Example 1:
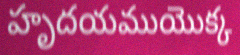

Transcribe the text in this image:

హృదయముయొక్క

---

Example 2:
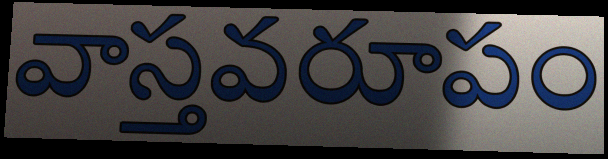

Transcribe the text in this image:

వాస్తవరూపం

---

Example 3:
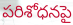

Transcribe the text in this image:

పరిశోధనపై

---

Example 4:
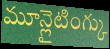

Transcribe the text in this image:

మూన్లైటింగ్కు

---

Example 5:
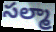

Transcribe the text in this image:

సల్మా